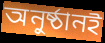
অনুষ্ঠানই